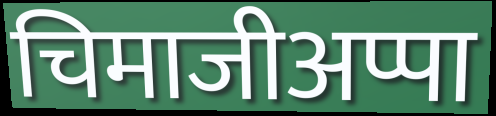
चिमाजीअप्पा